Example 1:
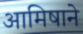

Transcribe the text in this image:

आमिषाने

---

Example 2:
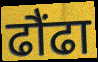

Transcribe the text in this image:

ढौंढा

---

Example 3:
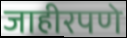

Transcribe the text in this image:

जाहीरपणे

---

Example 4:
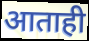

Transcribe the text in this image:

आताही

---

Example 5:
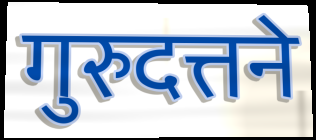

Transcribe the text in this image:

गुरुदत्तने